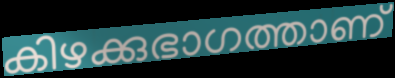
കിഴക്കുഭാഗത്താണ്